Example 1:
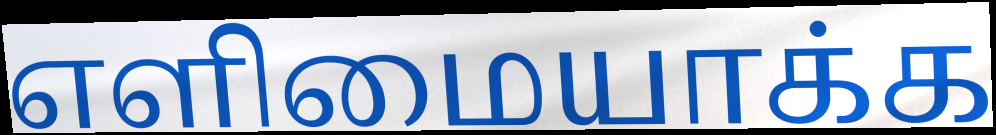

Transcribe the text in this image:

எளிமையாக்க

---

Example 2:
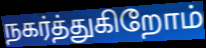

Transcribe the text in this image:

நகர்த்துகிறோம்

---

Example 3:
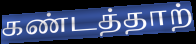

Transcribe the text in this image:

கண்டத்தாற்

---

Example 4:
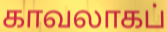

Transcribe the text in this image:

காவலாகப்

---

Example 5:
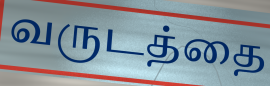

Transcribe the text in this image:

வருடத்தை